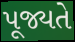
પૂજ્યતે